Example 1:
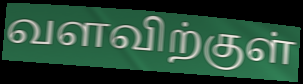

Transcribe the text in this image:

வளவிற்குள்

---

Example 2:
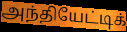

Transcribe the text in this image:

அந்தியேட்டிக்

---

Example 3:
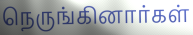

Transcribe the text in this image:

நெருங்கினார்கள்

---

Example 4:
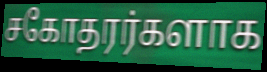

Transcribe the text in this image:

சகோதரர்களாக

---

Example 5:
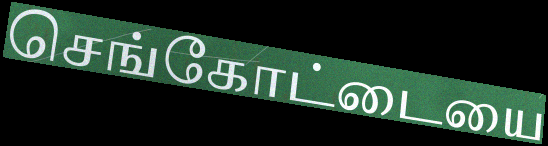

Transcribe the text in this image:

செங்கோட்டையை